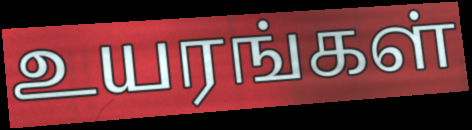
உயரங்கள்